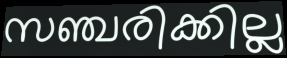
സഞ്ചരിക്കില്ല